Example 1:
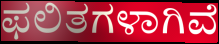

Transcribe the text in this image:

ಫಲಿತಗಳಾಗಿವೆ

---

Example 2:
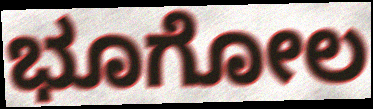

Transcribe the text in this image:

ಭೂಗೋಲ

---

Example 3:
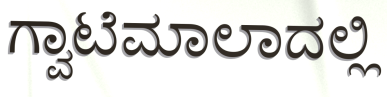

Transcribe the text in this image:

ಗ್ವಾಟೆಮಾಲಾದಲ್ಲಿ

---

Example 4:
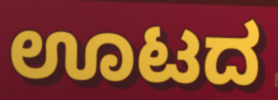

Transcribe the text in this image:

ಊಟದ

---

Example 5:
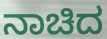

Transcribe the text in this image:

ನಾಚಿದ